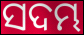
ସଦମ୍ଭ